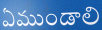
ఏముండాలి